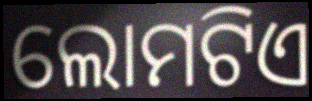
ଲୋମଟିଏ